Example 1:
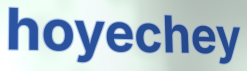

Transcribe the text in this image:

hoyechey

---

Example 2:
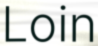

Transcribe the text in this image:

Loin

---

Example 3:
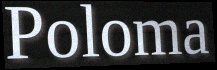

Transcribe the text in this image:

Poloma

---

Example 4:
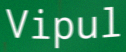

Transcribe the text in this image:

Vipul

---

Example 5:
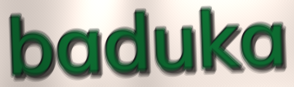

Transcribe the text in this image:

baduka